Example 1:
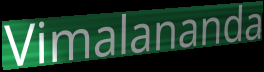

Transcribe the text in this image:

Vimalananda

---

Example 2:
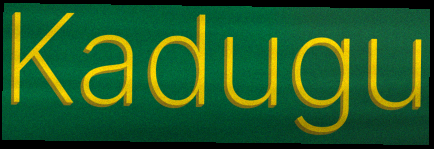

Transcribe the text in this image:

Kadugu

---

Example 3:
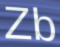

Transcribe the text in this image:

Zb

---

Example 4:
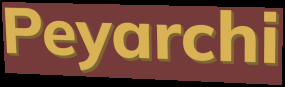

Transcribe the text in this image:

Peyarchi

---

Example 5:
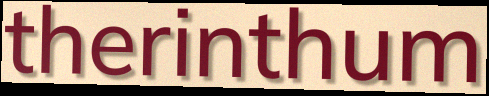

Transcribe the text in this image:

therinthum